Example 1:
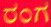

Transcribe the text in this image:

ರಂಗ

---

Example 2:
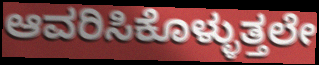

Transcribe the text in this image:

ಆವರಿಸಿಕೊಳ್ಳುತ್ತಲೇ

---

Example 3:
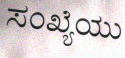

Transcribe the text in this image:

ಸಂಖ್ಯೆಯು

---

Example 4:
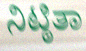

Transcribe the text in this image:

ನಿಟ್ಠಿತಾ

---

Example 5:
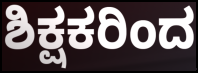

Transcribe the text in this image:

ಶಿಕ್ಷಕರಿಂದ